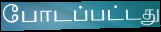
போடப்பட்டது